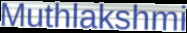
Muthlakshmi